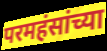
परमहंसांच्या